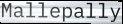
Mallepally